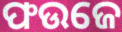
ଫଉଜେ